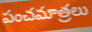
పంచమాత్రలు